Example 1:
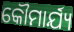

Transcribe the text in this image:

କୌମାର୍ଯ୍ୟ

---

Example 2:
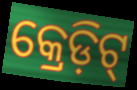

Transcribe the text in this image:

କ୍ରେଡ଼ିଟ୍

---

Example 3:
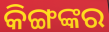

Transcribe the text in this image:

କିଙ୍ଗଙ୍କର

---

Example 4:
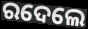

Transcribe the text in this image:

ରଦେଲେ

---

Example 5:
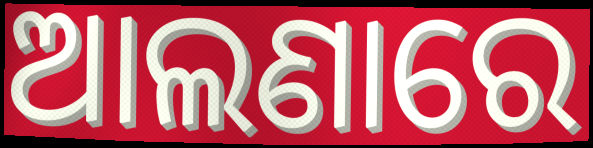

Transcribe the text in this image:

ଆଲଣାରେ